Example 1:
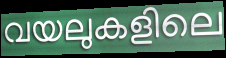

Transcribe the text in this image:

വയലുകളിലെ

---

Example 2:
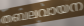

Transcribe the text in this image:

തബലവായന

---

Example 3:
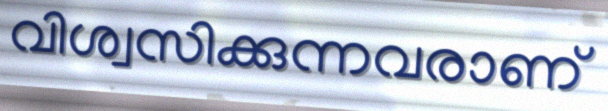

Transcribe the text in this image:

വിശ്വസിക്കുന്നവരാണ്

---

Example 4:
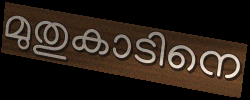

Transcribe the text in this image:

മുതുകാടിനെ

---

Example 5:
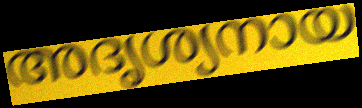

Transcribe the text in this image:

അദൃശ്യനായ